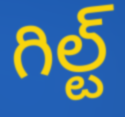
గిల్ట్